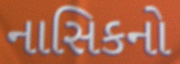
નાસિકનો